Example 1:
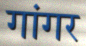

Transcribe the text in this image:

गांगर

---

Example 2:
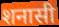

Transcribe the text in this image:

शनासी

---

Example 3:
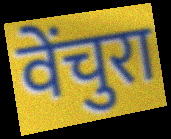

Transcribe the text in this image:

वेंचुरा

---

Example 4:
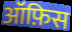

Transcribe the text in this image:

ऑफ़िस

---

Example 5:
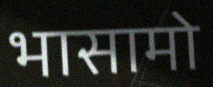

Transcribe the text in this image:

भासामो